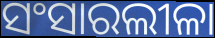
ସଂସାରଲୀଳା